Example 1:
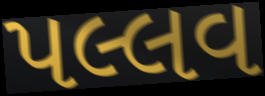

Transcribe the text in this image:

પલ્લવ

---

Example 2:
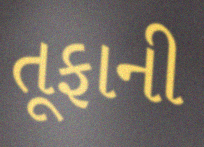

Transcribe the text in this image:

તૂફાની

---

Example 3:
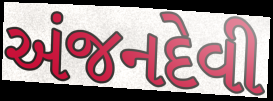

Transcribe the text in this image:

અંજનદેવી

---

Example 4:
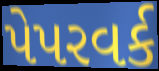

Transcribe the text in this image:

પેપરવર્ક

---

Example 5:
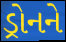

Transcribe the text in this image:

ડ્રોનને